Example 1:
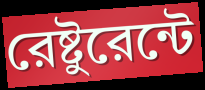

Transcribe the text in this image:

রেষ্টুরেন্টে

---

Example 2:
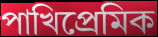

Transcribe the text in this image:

পাখিপ্রেমিক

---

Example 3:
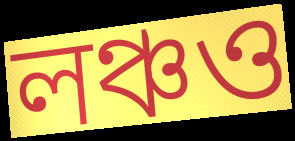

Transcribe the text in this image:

লঞ্চও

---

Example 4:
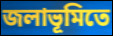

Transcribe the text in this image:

জলাভূমিতে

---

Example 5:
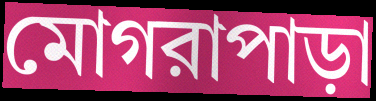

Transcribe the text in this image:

মোগরাপাড়া